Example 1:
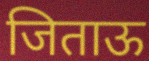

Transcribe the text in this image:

जिताऊ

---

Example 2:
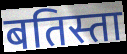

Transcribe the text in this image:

बतिस्ता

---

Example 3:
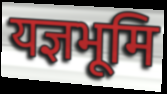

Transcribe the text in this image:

यज्ञभूमि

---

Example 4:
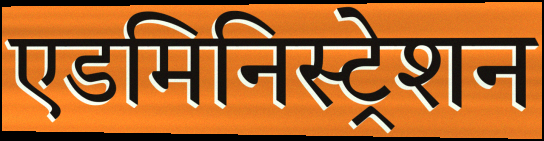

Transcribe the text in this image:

एडमिनिस्ट्रेशन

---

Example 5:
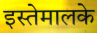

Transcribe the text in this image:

इस्तेमालके